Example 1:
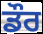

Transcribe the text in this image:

ਡੌਰ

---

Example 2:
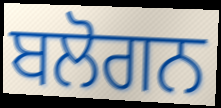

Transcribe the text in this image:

ਬਲੋਗਨ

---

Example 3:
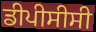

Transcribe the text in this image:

ਡੀਪੀਸੀਸੀ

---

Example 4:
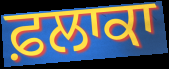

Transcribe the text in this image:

ਫ਼ਲਾਕਾ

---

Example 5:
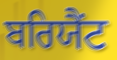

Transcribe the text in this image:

ਬਰਿਯੈਂਟ